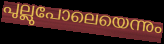
പുല്ലുപോലെയെന്നും